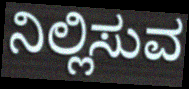
ನಿಲ್ಲಿಸುವ